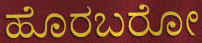
ಹೊರಬರೋ